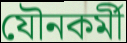
যৌনকৰ্মী